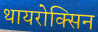
थायरोक्सिन